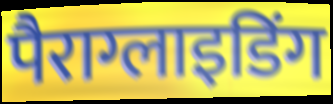
पैराग्लाइडिंग